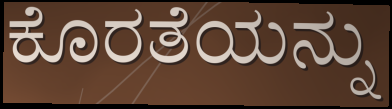
ಕೊರತೆಯನ್ನು